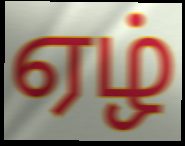
ஏழ்